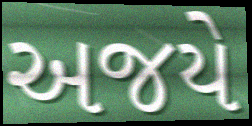
અજયે